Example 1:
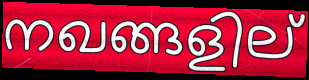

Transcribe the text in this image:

നഖങ്ങളില്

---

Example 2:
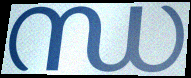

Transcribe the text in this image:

ന്ധ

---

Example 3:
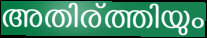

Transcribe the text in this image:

അതിര്ത്തിയും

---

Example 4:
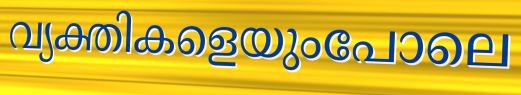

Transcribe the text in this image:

വ്യക്തികളെയുംപോലെ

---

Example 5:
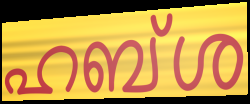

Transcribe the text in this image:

ഹബ്ശ